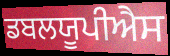
ਡਬਲਯੂਪੀਐਸ